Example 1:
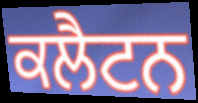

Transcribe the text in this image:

ਕਲੈਟਨ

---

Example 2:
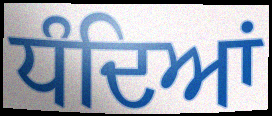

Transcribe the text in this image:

ਧੰਦਿਆਂ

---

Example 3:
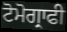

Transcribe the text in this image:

ਟੋਮੋਗ੍ਰਾਫੀ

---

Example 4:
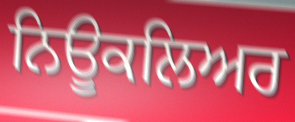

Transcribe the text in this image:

ਨਿਊਕਲਿਅਰ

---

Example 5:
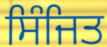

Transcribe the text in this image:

ਸਿੰਜਿਤ